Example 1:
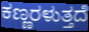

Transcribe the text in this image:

ಕಣ್ಣರಳುತ್ತದೆ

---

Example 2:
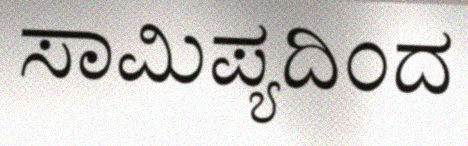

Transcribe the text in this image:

ಸಾಮಿಪ್ಯದಿಂದ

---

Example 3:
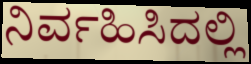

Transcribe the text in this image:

ನಿರ್ವಹಿಸಿದಲ್ಲಿ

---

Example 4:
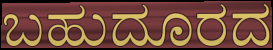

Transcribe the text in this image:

ಬಹುದೂರದ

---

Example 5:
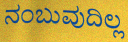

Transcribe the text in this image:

ನಂಬುವುದಿಲ್ಲ